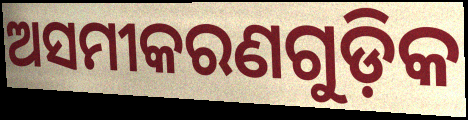
ଅସମୀକରଣଗୁଡ଼ିକ